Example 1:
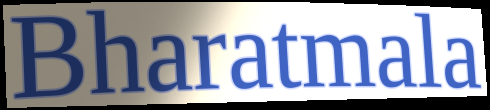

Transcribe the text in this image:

Bharatmala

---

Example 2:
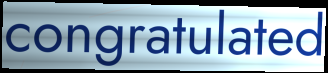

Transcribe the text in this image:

congratulated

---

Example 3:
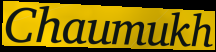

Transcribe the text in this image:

Chaumukh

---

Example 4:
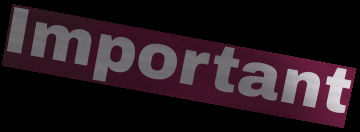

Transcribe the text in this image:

Important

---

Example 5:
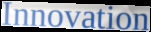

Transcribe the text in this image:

Innovation